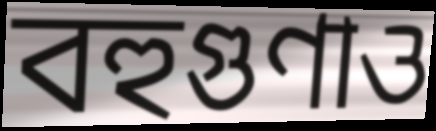
বহুগুণাও